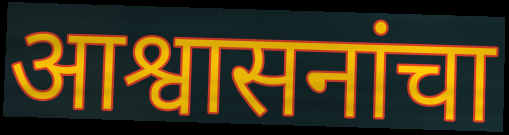
आश्वासनांचा